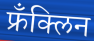
फ्रँक्लिन